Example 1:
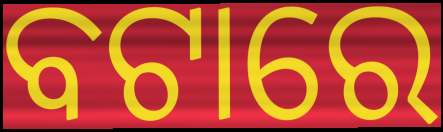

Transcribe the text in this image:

ବଟାରେ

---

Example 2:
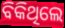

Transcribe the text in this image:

ବିକିଥିଲେ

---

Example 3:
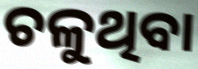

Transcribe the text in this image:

ଚଳୁଥିବା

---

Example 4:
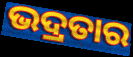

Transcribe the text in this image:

ଭଦ୍ରତାର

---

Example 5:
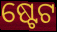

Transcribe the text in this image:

ଷ୍ଟେଟ